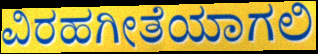
ವಿರಹಗೀತೆಯಾಗಲಿ